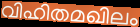
വിഹിതമഖിലം